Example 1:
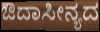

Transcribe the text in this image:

ಔದಾಸೀನ್ಯದ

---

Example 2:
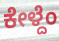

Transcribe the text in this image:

ಕೇಳ್ದೆಂ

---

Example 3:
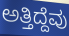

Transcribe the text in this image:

ಅತ್ತಿದ್ದೆವು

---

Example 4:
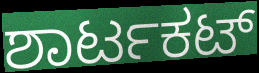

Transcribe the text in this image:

ಶಾರ್ಟಕಟ್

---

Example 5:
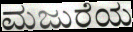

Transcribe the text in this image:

ಮಜುರೆಯ